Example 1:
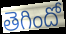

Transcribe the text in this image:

తెగిందో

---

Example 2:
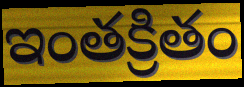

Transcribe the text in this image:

ఇంతక్రితం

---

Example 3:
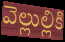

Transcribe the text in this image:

వెల్లుల్లికి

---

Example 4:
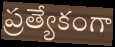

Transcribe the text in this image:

ప్రత్యేకంగా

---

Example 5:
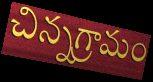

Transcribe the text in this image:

చిన్నగ్రామం